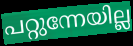
പറ്റുന്നേയില്ല